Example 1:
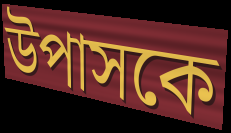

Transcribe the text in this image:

উপাসকে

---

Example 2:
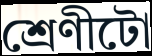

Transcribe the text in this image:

শ্ৰেণীটো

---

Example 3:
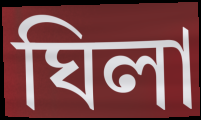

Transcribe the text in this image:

ঘিলা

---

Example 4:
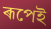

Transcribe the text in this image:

ৰূপেই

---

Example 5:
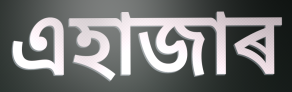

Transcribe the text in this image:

এহাজাৰ